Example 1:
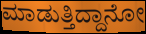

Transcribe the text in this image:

ಮಾಡುತ್ತಿದ್ದಾನೋ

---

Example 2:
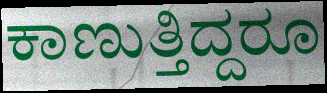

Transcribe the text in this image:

ಕಾಣುತ್ತಿದ್ದರೂ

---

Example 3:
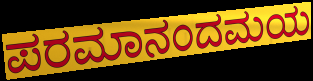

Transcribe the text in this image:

ಪರಮಾನಂದಮಯ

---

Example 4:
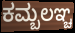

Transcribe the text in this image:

ಕಮ್ಬಲಞ್ಚ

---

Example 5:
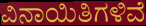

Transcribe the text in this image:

ವಿನಾಯಿತಿಗಳಿವೆ